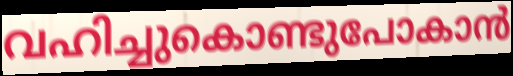
വഹിച്ചുകൊണ്ടുപോകാൻ